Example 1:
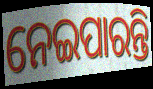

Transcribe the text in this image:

ନେଇପାରନ୍ତି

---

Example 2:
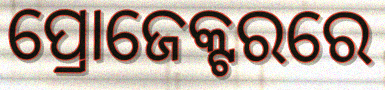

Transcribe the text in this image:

ପ୍ରୋଜେକ୍ଟରରେ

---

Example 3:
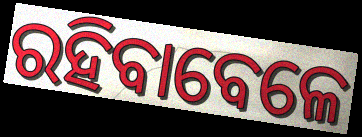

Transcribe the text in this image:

ରହିବାବେଳେ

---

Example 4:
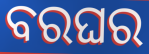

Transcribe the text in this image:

ବରଘର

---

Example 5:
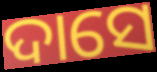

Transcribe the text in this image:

ଦାସେ